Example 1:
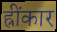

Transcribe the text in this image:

ह्रींकार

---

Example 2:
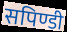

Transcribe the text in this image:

सपिण्डी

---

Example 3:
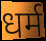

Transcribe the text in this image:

धर्म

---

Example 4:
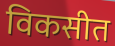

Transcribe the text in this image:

विकसीत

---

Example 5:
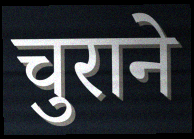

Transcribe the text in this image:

चुराने